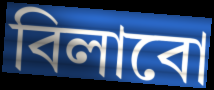
বিলাবো